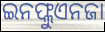
ଇନଫ୍ଲୁଏନଜା